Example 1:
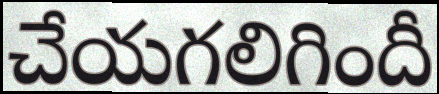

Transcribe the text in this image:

చేయగలిగిందీ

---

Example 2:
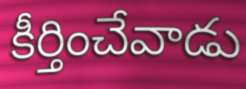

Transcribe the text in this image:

కీర్తించేవాడు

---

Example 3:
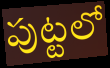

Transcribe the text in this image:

పుట్టలో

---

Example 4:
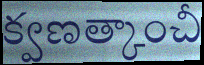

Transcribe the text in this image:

క్వణత్కాంచీ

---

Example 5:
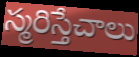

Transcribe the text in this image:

స్మరిస్తేచాలు